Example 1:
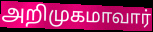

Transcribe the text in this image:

அறிமுகமாவார்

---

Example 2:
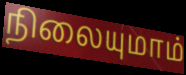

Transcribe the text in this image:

நிலையுமாம்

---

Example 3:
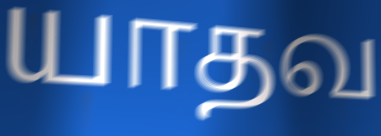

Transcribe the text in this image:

யாதவ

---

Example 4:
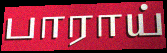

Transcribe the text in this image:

பாராய்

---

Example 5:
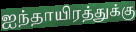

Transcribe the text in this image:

ஐந்தாயிரத்துக்கு